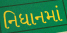
નિધાનમાં